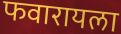
फवारायला